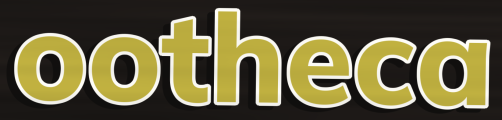
ootheca